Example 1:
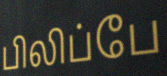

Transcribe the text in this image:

பிலிப்பே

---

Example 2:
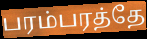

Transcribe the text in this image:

பரம்பரத்தே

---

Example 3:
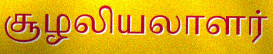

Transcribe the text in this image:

சூழலியலாளர்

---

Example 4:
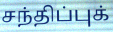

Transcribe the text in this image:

சந்திப்புக்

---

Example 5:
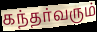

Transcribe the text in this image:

கந்தர்வரும்